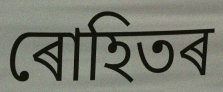
ৰোহিতৰ